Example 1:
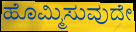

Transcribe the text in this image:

ಹೊಮ್ಮಿಸುವುದೇ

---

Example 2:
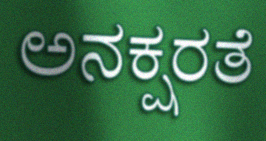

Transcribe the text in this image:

ಅನಕ್ಷರತೆ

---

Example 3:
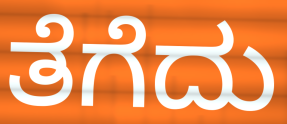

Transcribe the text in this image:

ತೆಗೆದು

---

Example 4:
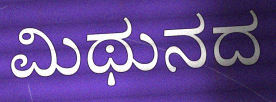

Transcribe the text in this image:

ಮಿಥುನದ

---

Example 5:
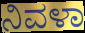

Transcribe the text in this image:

ನಿವಳಾ